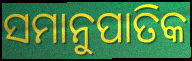
ସମାନୁପାତିକ